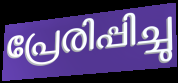
പ്രേരിപ്പിച്ചു